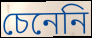
চেনেনি